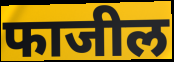
फाजील